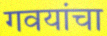
गवयांचा